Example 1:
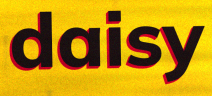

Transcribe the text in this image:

daisy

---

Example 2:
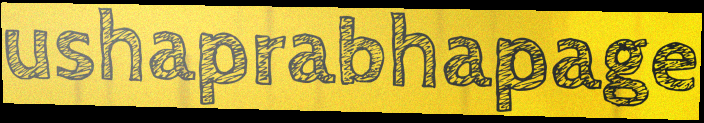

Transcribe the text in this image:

ushaprabhapage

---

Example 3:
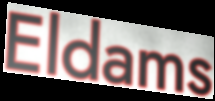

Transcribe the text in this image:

Eldams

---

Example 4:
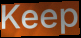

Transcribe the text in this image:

Keep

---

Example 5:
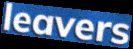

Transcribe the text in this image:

leavers